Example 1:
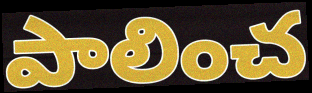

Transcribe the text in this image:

పాలించ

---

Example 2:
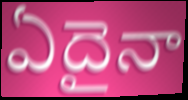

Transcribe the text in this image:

ఏదైనా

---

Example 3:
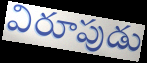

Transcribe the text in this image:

విరూపుడు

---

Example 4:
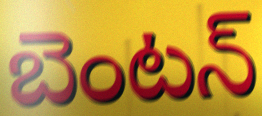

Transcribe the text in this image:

బెంటన్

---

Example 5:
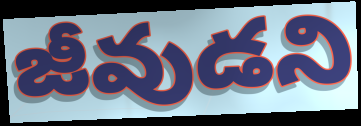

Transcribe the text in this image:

జీవుడని